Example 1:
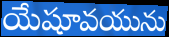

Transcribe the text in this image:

యేషూవయును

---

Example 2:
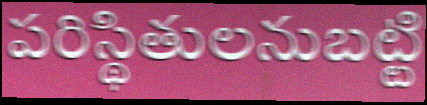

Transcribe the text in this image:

పరిస్థితులనుబట్టి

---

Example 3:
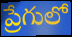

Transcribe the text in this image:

ప్రేగులో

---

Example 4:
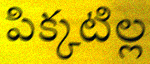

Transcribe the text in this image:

పిక్కటిల్ల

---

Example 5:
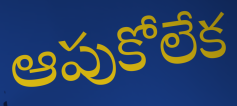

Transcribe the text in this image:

ఆపుకోలేక